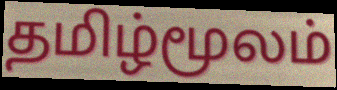
தமிழ்மூலம்